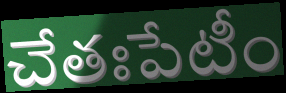
చేతఃపేటీం